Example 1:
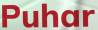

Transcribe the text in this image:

Puhar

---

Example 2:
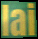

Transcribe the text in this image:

Iai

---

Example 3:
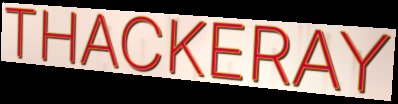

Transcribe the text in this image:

THACKERAY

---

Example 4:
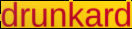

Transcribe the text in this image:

drunkard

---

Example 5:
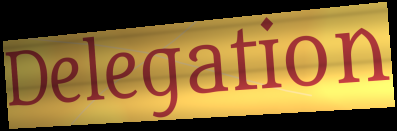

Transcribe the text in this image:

Delegation